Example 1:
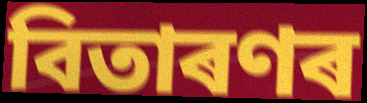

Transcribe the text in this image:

বিতাৰণৰ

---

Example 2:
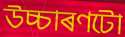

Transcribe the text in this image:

উচ্চাৰণটো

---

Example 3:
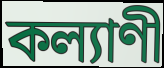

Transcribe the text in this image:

কল্যাণী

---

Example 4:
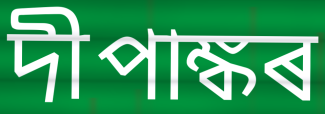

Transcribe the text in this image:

দীপাঙ্কৰ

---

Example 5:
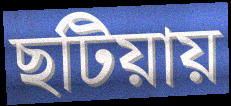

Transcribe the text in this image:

ছটিয়ায়